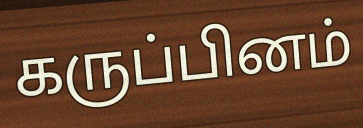
கருப்பினம்